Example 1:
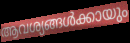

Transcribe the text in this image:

ആവശ്യങ്ങൾക്കായും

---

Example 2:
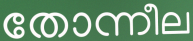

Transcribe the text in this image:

തോന്നീല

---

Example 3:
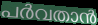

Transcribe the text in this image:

പർവതാൻ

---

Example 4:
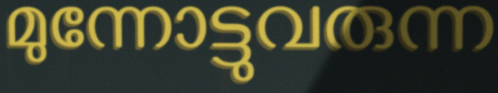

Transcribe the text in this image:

മുന്നോട്ടുവരുന്ന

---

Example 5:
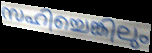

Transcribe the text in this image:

സഹിച്ചെങ്കിലും